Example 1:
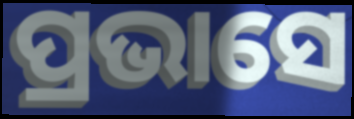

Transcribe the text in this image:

ପ୍ରଭାସେ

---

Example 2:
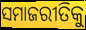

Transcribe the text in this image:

ସମାଜରୀତିକୁ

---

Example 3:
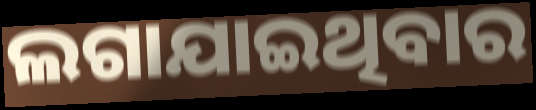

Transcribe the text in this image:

ଲଗାଯାଇଥିବାର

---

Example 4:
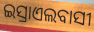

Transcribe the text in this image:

ଇସ୍ରାଏଲବାସୀ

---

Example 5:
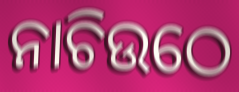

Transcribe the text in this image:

ନାଚିଉଠେ